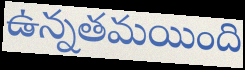
ఉన్నతమయింది